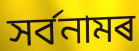
সৰ্বনামৰ